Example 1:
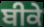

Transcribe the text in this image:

ਬੀਕੇ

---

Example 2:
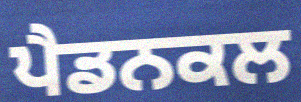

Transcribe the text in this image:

ਪੈਡਨਕਲ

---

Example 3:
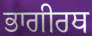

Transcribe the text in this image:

ਭਾਗੀਰਥ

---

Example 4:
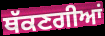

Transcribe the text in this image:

ਥੱਕਣਗੀਆਂ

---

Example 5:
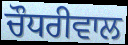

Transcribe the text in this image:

ਚੌਧਰੀਵਾਲ